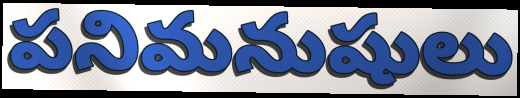
పనిమనుషులు